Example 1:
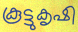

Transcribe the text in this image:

കൂട്ടുകൃഷി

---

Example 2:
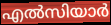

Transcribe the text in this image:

എൽസിയാർ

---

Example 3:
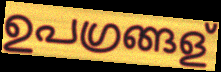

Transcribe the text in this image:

ഉപഗ്രങ്ങള്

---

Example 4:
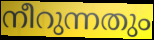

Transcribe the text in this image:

നീറുന്നതും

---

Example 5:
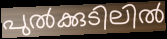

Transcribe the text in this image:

പുൽക്കുടിലിൽ